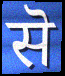
सॆ